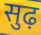
सुढ़